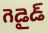
గెడైడ్